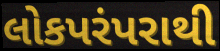
લોકપરંપરાથી